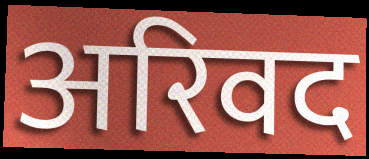
अरिवद